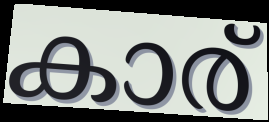
കാര്